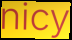
nicy